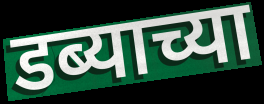
डब्याच्या